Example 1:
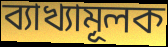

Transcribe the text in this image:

ব্যাখ্যামূলক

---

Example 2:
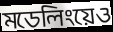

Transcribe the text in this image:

মডেলিংয়েও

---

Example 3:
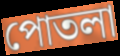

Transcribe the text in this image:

পোতলা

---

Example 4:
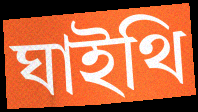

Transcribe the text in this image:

ঘাইথি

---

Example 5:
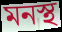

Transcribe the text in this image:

মনস্থ